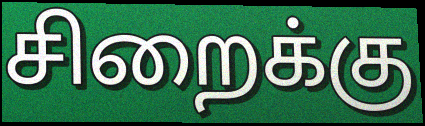
சிறைக்கு